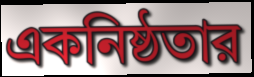
একনিষ্ঠতার